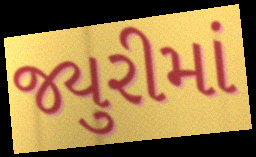
જ્યુરીમાં